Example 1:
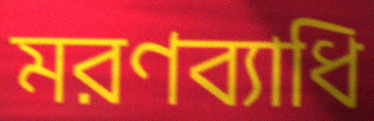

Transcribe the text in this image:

মরণব্যাধি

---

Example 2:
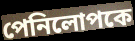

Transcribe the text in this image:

পেনিলোপকে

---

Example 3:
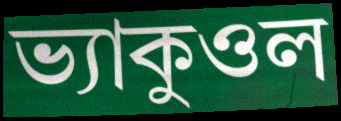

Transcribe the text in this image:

ভ্যাকুওল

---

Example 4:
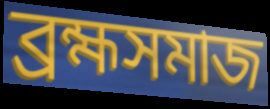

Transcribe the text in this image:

ব্রহ্মসমাজ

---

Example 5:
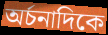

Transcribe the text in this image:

অর্চনাদিকে